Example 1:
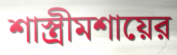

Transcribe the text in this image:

শাস্ত্রীমশায়ের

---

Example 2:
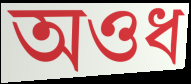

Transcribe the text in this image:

অওধ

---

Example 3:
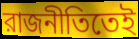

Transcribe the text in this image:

রাজনীতিতেই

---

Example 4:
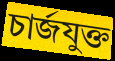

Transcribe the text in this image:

চার্জযুক্ত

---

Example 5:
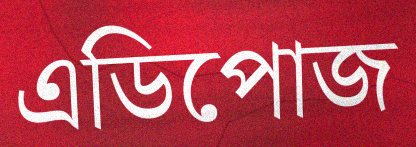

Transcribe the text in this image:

এডিপোজ